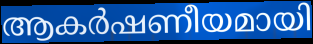
ആകർഷണീയമായി